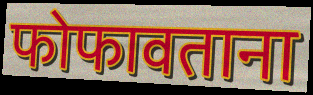
फोफावताना